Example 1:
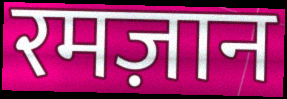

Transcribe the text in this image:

रमज़ान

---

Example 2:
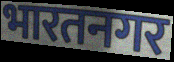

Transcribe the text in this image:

भारतनगर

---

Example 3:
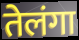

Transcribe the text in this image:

तेलंगा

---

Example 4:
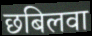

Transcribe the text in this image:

छबिलवा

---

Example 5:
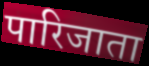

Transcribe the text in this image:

पारिजाता